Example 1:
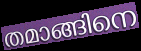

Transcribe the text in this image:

തമാങ്ങിനെ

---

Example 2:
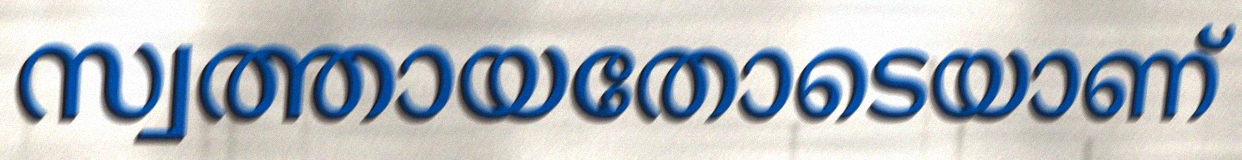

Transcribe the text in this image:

സ്വത്തായതോടെയാണ്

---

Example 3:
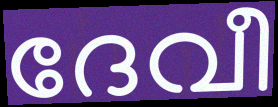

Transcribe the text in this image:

ദേവീ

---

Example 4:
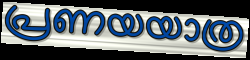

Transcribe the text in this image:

പ്രണയയാത്ര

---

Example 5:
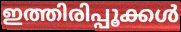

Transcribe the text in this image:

ഇത്തിരിപ്പൂക്കൾ